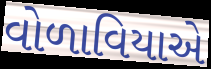
વોળાવિયાએ